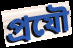
প্রযৌ